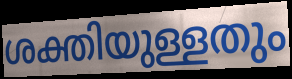
ശക്തിയുള്ളതും